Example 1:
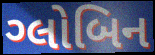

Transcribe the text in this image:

ગ્લોબિન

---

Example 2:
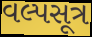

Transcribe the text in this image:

વલ્પસૂત્ર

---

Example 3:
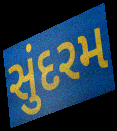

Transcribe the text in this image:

સુંદરમ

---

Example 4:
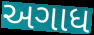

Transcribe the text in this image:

અગાધ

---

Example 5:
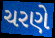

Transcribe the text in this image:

ચરણે